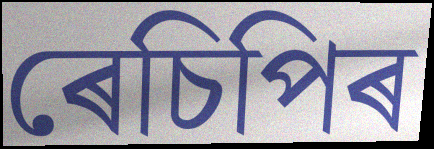
ৰেচিপিৰ